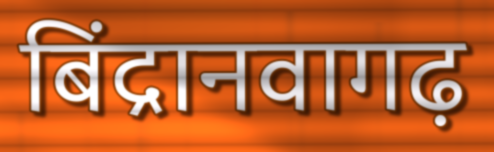
बिंद्रानवागढ़